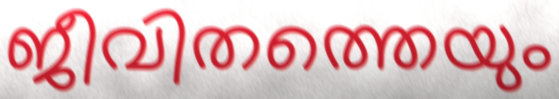
ജീവിതത്തെയും